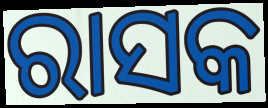
ରାସକ